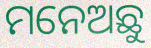
ମନେଅଛୁ